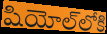
షియోల్‌లోకి